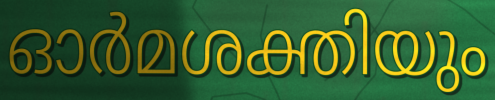
ഓർമശക്തിയും